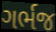
ગર્ભજ